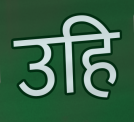
उहि